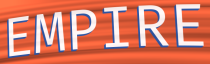
EMPIRE